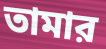
তামার